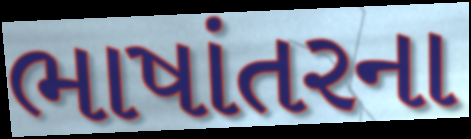
ભાષાંતરના